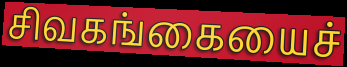
சிவகங்கையைச்